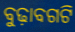
ବୁଢ଼ାବଗଟି